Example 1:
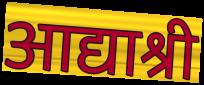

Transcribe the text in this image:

आद्याश्री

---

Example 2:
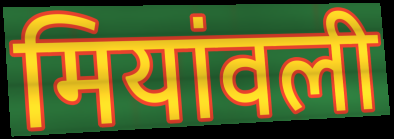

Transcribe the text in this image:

मियांवली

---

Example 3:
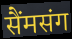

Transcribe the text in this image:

सैंमसंग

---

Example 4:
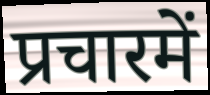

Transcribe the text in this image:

प्रचारमें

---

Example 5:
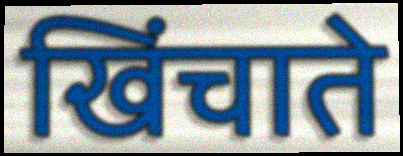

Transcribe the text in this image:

खिंचाते